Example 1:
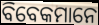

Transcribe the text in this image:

ବିବେକମାନେ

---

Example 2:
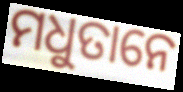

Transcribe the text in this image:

ମଧୁତାନେ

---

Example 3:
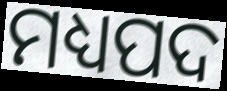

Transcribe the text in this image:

ମଧ୍ୟପଦ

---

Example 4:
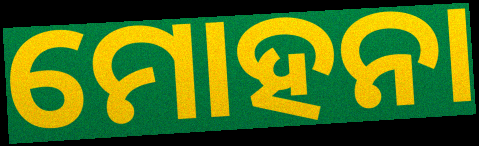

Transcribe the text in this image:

ମୋହନା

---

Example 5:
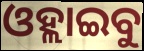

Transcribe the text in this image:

ଓହ୍ଲାଇବୁ